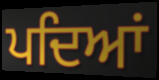
ਪਦਿਆਂ